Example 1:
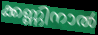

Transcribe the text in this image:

ക്കണ്ണിനാൽ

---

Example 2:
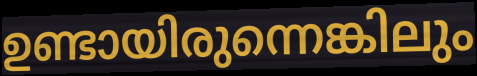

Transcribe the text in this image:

ഉണ്ടായിരുന്നെങ്കിലും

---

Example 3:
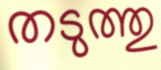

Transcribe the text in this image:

തടുത്തു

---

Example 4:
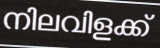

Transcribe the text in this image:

നിലവിളക്ക്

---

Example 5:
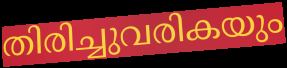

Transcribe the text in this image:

തിരിച്ചുവരികയും